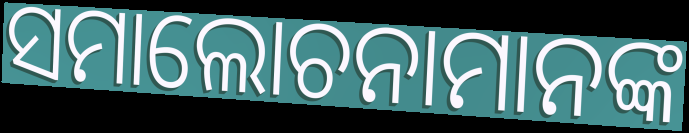
ସମାଲୋଚନାମାନଙ୍କ